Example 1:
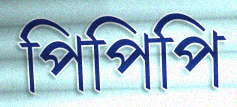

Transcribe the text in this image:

পিপিপি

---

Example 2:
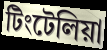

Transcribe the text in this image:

টিংটেলিয়া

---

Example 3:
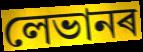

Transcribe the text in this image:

লেভানৰ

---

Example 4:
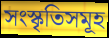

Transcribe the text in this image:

সংস্কৃতিসমূহ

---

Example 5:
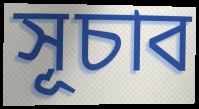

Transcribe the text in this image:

সূচাব